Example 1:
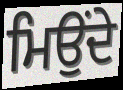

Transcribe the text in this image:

ਮਿਉਂਦੇ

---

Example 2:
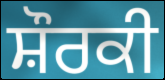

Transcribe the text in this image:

ਸ਼ੌਰਕੀ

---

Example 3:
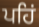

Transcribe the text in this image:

ਪਹਿਂ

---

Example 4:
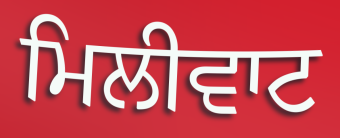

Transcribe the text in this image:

ਮਿਲੀਵਾਟ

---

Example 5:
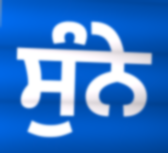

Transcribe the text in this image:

ਸੁੰਨੇ